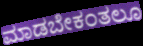
ಮಾಡಬೇಕಂತಲೂ